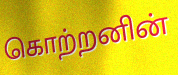
கொற்றனின்